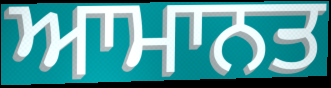
ਆਮਾਨਤ